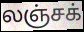
லஞ்சக்